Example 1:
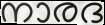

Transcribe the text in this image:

നാരദ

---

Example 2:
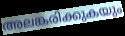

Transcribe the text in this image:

അലങ്കരിക്കുകയും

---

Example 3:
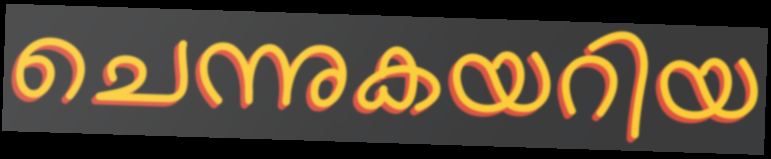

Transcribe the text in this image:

ചെന്നുകയറിയ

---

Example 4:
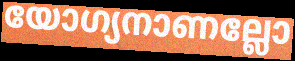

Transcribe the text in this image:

യോഗ്യനാണല്ലോ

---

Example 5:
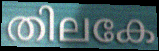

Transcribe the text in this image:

തിലകേ